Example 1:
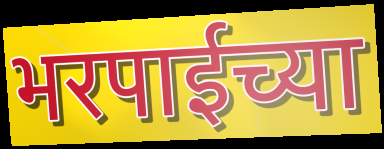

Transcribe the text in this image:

भरपाईच्या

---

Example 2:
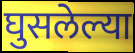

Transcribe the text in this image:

घुसलेल्या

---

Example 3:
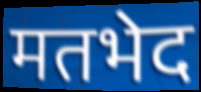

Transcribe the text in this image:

मतभेद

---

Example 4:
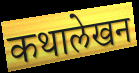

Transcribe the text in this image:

कथालेखन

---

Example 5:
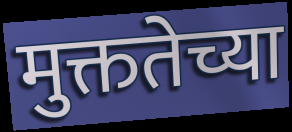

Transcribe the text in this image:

मुक्ततेच्या